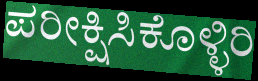
ಪರೀಕ್ಷಿಸಿಕೊಳ್ಳಿರಿ